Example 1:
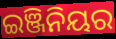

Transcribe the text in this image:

ଇଞ୍ଜିନିୟର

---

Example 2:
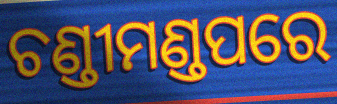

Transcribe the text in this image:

ଚଣ୍ଡୀମଣ୍ଡପରେ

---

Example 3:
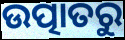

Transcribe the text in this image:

ଉତ୍ପାତରୁ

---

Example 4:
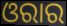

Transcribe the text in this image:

ଓରାର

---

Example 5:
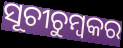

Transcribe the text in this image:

ସୂଚୀଚୁମ୍ବକର